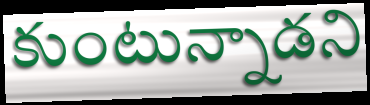
కుంటున్నాడని